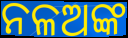
ନଳଅଙ୍କ